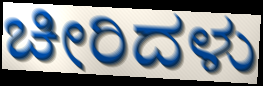
ಚೀರಿದಳು